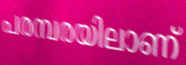
പരമ്പരയിലാണ്